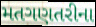
મતગણતરીના